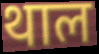
थाल